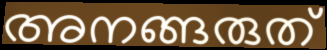
അനങ്ങരുത്